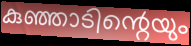
കുഞ്ഞാടിന്റെയും